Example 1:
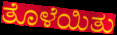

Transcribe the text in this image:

ತೊಳೆಯಿತು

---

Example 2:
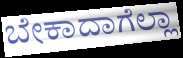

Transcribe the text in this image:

ಬೇಕಾದಾಗೆಲ್ಲಾ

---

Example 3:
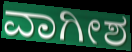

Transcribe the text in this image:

ವಾಗೀಶ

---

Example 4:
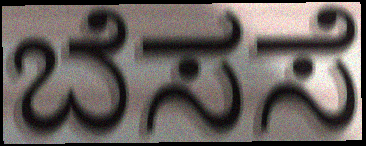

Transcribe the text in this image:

ಬೆಸಸೆ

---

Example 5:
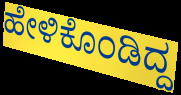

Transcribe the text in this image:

ಹೇಳಿಕೊಂಡಿದ್ದ